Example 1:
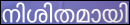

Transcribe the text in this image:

നിശിതമായി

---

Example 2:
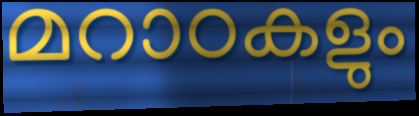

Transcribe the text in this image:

മറാഠകളും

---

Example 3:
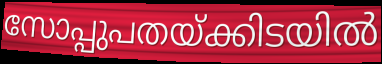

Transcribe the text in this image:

സോപ്പുപതയ്ക്കിടയിൽ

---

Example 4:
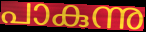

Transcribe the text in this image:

പാകുന്നു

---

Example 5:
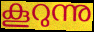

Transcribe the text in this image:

കൂറുന്നു